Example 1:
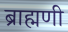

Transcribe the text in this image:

ब्राह्मणी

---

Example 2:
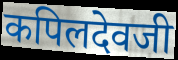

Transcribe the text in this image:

कपिलदेवजी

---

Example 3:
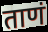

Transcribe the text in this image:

ताणं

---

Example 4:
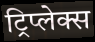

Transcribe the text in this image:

ट्रिप्लेक्स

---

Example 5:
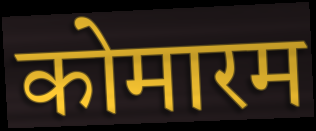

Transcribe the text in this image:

कोमारम